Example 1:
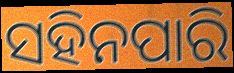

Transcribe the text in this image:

ସହିନପାରି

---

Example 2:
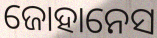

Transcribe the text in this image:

ଜୋହାନେସ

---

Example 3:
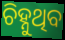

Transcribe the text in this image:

ଚିହ୍ନୁଥିବ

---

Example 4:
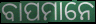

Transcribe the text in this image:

ବାପମାନେ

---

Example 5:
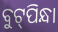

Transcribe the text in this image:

ବୁଟ୍‌ପିନ୍ଧା